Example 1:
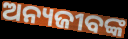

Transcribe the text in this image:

ଅନ୍ୟଜୀବଙ୍କ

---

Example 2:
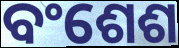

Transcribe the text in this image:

ବଂଶେଶ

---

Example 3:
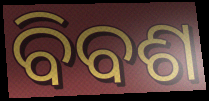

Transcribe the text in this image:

ବିବଶ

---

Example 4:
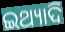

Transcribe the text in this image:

ଇଥ୍ୟାଦି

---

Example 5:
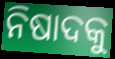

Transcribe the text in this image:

ନିଷାଦକୁ